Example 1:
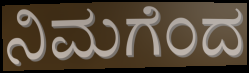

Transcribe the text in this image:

ನಿಮಗೆಂದ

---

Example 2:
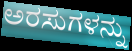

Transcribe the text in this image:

ಅರಸುಗಳನ್ನು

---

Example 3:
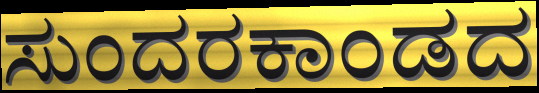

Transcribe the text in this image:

ಸುಂದರಕಾಂಡದ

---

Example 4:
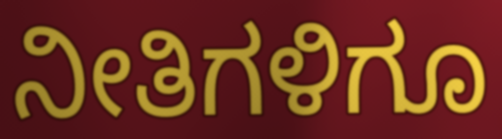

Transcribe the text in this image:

ನೀತಿಗಳಿಗೂ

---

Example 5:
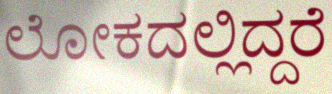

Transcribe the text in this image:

ಲೋಕದಲ್ಲಿದ್ದರೆ